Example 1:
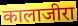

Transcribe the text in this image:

कालाजीरा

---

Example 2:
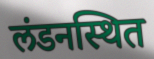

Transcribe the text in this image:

लंडनस्थित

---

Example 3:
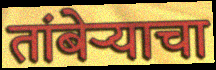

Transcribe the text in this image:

तांबेऱ्याचा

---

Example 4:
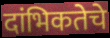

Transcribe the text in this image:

दांभिकतेचे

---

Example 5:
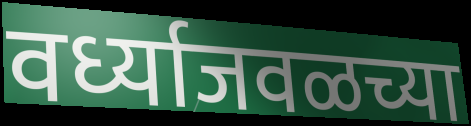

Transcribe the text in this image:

वर्ध्याजवळच्या